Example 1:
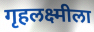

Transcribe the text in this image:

गृहलक्ष्मीला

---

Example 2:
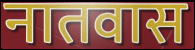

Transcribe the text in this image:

नातवास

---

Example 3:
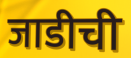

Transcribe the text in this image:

जाडीची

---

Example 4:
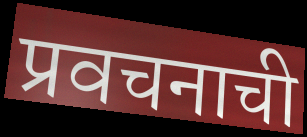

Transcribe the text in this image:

प्रवचनाची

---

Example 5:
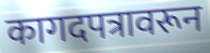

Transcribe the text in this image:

कागदपत्रावरून